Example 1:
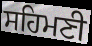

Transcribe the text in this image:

ਸਹਿਮਣੀ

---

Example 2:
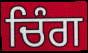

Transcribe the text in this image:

ਚਿੰਗ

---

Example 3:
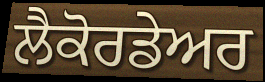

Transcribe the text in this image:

ਲੈਕੋਰਡੇਅਰ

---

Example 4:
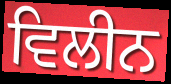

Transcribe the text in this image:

ਵਿਲੀਨ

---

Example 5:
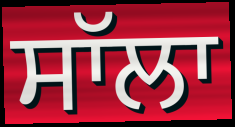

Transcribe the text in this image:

ਸਾੱਲਾ